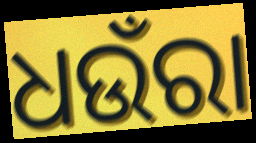
ଧଉଁରା